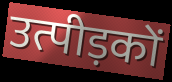
उत्पीड़कों